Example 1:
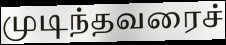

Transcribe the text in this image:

முடிந்தவரைச்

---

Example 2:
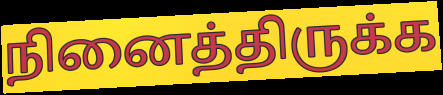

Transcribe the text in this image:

நினைத்திருக்க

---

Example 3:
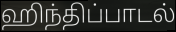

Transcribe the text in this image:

ஹிந்திப்பாடல்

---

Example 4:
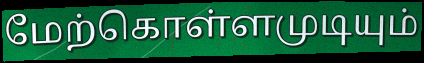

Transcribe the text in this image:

மேற்கொள்ளமுடியும்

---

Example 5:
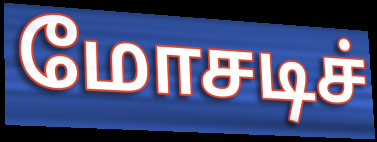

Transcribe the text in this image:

மோசடிச்